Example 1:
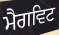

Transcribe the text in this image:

ਮੈਗਵਿਟ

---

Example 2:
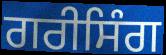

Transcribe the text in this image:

ਗਰੀਸਿੰਗ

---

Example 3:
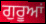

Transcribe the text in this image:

ਗੁਰੂਆਂ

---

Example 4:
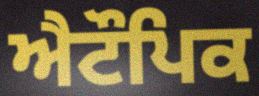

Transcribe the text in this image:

ਐਟੌਪਿਕ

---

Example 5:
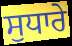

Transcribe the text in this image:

ਸੁਧਾਰੇ